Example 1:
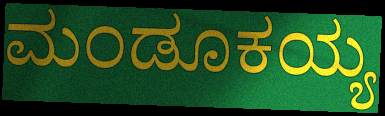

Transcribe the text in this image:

ಮಂಡೂಕಯ್ಯ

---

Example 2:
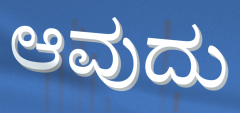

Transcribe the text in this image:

ಆವುದು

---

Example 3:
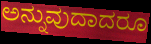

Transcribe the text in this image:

ಅನ್ನುವುದಾದರೂ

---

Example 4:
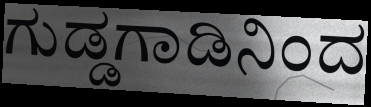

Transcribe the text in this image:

ಗುಡ್ಡಗಾಡಿನಿಂದ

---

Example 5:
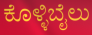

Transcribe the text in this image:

ಕೊಳ್ಳಿಬೈಲು